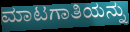
ಮಾಟಗಾತಿಯನ್ನು